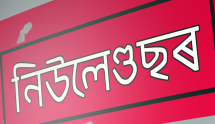
নিউলেণ্ডছৰ